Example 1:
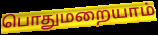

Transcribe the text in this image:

பொதுமறையாம்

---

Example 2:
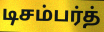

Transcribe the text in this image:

டிசம்பர்த்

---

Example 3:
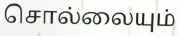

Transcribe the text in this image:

சொல்லையும்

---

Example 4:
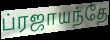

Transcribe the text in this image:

ப்ரஜாயந்தே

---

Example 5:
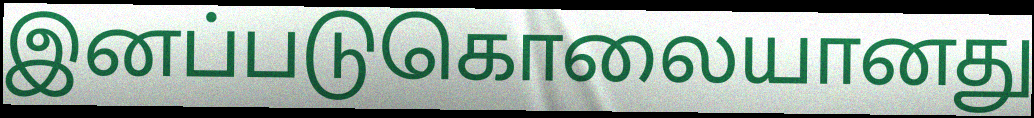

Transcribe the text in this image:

இனப்படுகொலையானது